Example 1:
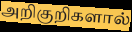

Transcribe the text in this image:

அறிகுறிகளால்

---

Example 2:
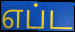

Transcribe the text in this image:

எப்ட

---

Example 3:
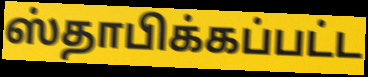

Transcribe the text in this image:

ஸ்தாபிக்கப்பட்ட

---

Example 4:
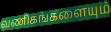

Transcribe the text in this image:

வணிகங்களையும்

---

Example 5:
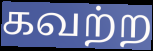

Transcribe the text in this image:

கவற்ற